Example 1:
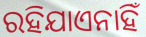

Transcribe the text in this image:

ରହିଯାଏନାହିଁ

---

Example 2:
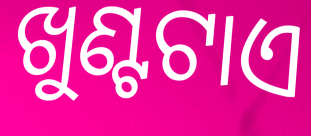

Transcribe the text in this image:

ଖୁଣ୍ଟଟାଏ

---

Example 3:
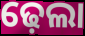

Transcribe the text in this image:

ଢ଼େଲା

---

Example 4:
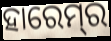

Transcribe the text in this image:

ହାରେମ୍‍ର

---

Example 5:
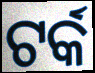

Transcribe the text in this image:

ଟର୍କ